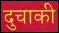
दुचाकी